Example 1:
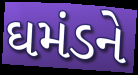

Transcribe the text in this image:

ઘમંડને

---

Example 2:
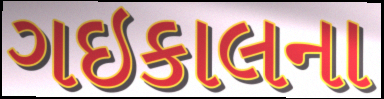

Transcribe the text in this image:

ગઇકાલના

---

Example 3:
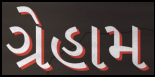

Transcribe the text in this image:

ગ્રેહામ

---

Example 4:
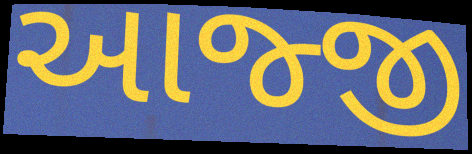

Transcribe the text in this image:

આજ્જી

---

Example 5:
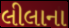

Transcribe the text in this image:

લીલાના